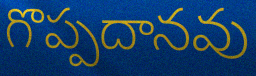
గొప్పదానవు